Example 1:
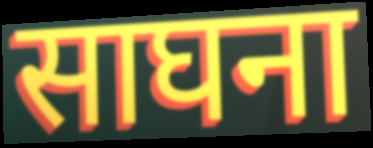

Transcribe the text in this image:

साघना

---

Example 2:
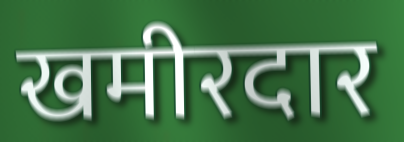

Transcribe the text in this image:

खमीरदार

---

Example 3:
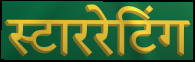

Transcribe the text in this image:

स्टाररेटिंग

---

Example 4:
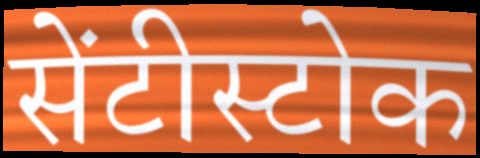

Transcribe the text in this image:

सेंटीस्टोक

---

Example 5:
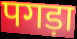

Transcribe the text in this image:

पगड़ा